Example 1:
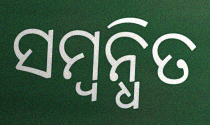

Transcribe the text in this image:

ସମ୍ଵନ୍ଧିତ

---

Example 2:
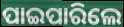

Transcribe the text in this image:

ପାଇପାରିଲେ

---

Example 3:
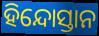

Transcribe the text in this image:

ହିନ୍ଦୋସ୍ତାନ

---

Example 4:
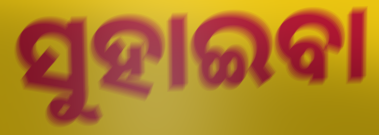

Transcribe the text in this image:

ସୁହାଇବା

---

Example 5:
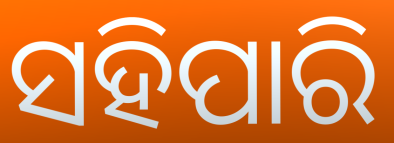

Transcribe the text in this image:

ସହିପାରି